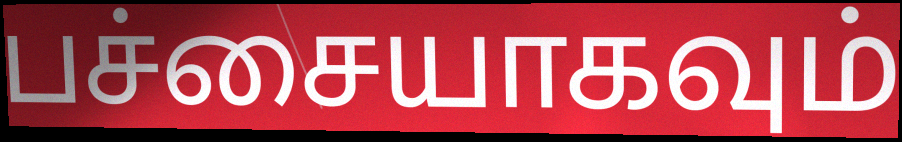
பச்சையாகவும்